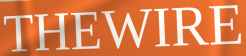
THEWIRE